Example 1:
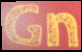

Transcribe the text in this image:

Gn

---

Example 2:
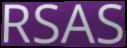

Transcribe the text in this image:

RSAS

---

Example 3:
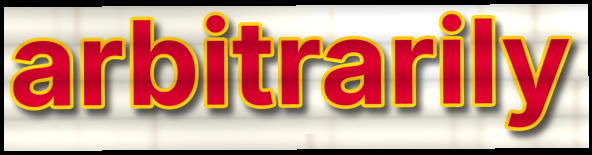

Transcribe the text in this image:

arbitrarily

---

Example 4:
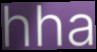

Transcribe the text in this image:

hha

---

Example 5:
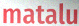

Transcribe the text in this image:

matalu